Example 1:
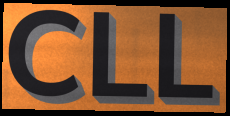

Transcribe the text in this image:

CLL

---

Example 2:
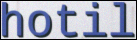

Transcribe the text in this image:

hotil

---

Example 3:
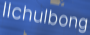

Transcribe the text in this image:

Ilchulbong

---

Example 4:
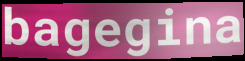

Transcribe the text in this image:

bagegina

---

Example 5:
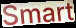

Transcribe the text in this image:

Smart